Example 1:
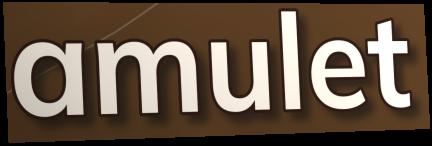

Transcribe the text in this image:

amulet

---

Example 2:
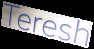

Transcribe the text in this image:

Teresh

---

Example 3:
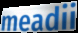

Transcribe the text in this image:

meadii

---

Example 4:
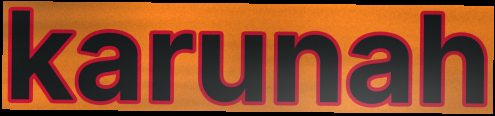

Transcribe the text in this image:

karunah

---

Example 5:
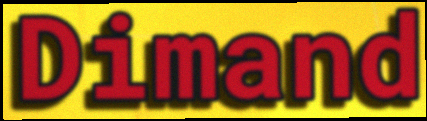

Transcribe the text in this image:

Dimand